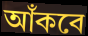
আঁকবে